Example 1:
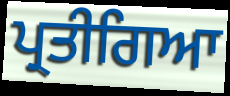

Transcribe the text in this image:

ਪ੍ਰਤੀਗਿਆ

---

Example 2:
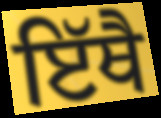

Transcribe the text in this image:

ਇੱਥੈ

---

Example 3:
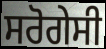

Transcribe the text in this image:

ਸਰੋਗੇਸੀ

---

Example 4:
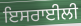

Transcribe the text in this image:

ਇਸਰਾਈਲੀ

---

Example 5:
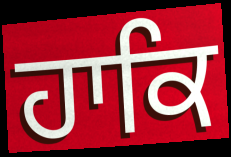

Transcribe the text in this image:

ਹਾਕਿ